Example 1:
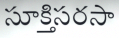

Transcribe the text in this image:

సూక్తిసరసా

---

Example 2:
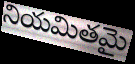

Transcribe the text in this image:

నియమితమై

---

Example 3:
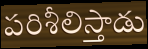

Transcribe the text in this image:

పరిశీలిస్తాడు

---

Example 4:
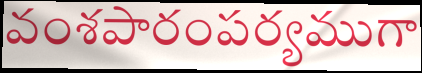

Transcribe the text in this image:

వంశపారంపర్యముగా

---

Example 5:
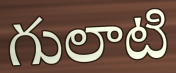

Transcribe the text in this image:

గులాటి